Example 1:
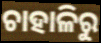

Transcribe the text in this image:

ଚାହାଳିରୁ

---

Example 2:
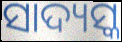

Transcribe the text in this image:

ସାଦ୍ୟସ୍କ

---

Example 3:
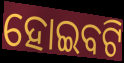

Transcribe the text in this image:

ହୋଇବଟି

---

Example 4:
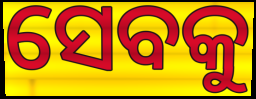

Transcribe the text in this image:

ସେବକୁ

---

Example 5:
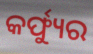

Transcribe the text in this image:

କର୍ଫ୍ୟୁର